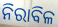
ନିରାବିଳ